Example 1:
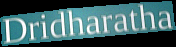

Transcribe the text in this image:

Dridharatha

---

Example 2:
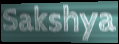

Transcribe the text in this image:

Sakshya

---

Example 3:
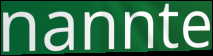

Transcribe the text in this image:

nannte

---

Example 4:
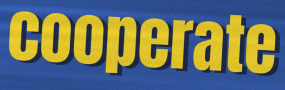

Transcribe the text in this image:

cooperate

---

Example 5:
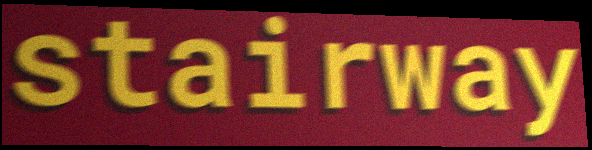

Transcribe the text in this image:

stairway